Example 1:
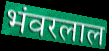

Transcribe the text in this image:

भंवरलाल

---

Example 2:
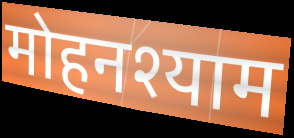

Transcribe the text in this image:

मोहनश्याम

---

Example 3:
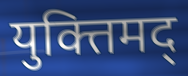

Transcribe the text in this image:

युक्तिमद्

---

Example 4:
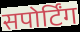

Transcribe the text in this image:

सपोर्टिंग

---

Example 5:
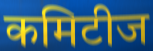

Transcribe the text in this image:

कमिटीज